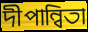
দীপান্বিতা